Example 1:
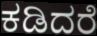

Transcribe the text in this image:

ಕಡಿದರೆ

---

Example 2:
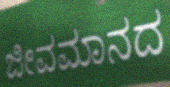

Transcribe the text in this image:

ಜೀವಮಾನದ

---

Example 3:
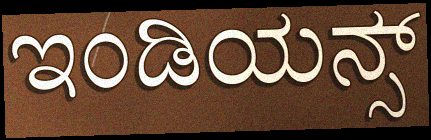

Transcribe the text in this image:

ಇಂಡಿಯನ್ಸ್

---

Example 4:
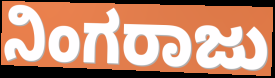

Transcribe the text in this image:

ನಿಂಗರಾಜು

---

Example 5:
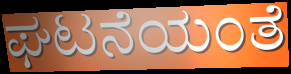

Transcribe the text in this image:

ಘಟನೆಯಂತೆ